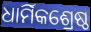
ଧାର୍ମିକଶ୍ରେଷ୍ଠ